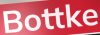
Bottke